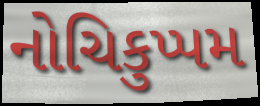
નોચિકુપ્પમ